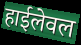
हाईलेवल